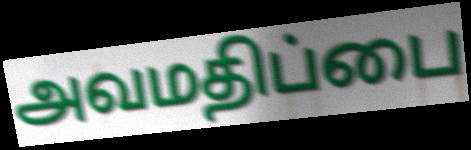
அவமதிப்பை